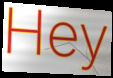
Hey